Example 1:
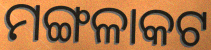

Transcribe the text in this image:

ମଙ୍ଗଳାକଟ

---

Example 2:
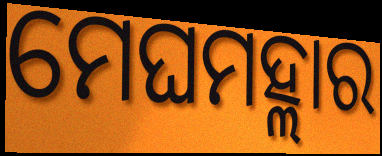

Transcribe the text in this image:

ମେଘମହ୍ଲାର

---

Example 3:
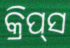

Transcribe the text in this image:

କ୍ରିପ୍‍ସ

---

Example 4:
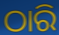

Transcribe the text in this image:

ଠାରି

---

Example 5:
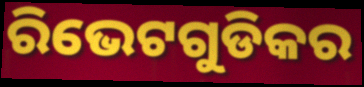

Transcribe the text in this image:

ରିଭେଟଗୁଡିକର